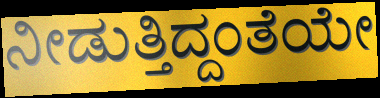
ನೀಡುತ್ತಿದ್ದಂತೆಯೇ